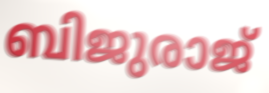
ബിജുരാജ്